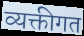
व्यक्तीगत